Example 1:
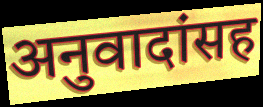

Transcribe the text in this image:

अनुवादांसह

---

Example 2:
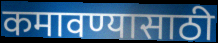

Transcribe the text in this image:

कमावण्यासाठी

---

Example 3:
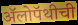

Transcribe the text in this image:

ॲलोपॅथीची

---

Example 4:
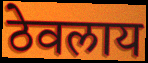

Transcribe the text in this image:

ठेवलाय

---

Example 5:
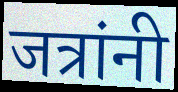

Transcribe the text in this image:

जत्रांनी